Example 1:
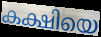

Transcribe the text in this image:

കക്ഷിയെ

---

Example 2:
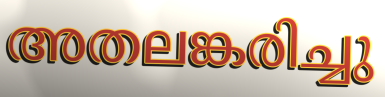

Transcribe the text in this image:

അതലങ്കരിച്ചു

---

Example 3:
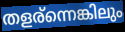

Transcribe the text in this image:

തളര്ന്നെങ്കിലും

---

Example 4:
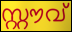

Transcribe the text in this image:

സ്റ്റൗവ്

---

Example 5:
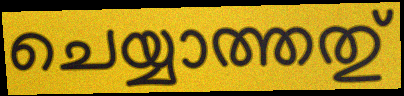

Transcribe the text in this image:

ചെയ്യാത്തതു്